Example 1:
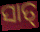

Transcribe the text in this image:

ସାତ୍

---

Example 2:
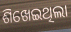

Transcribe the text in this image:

ଶିଖେଇଥିଲା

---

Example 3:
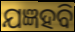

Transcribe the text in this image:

ଯଜ୍ଞହବି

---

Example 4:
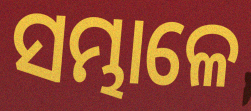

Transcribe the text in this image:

ସମ୍ଭାଳେ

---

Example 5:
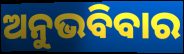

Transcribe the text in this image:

ଅନୁଭବିବାର